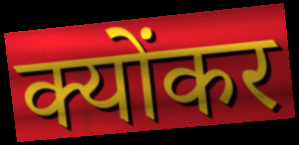
क्योंकर